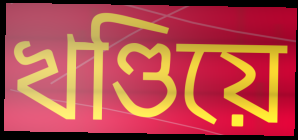
খণ্ডিয়ে